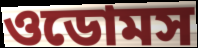
ওডোমস